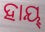
ହାୟ୍